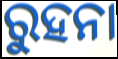
ରୁହନା